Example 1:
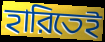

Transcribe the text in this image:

হারিতেই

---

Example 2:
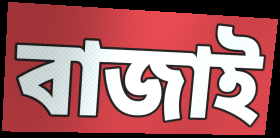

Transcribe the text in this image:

বাজাই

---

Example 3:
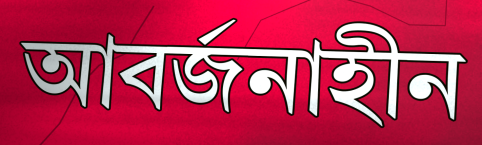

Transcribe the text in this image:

আবর্জনাহীন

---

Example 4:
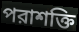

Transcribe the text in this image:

পরাশক্তি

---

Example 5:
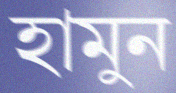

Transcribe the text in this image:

হামুন